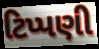
ટિપ્પણી